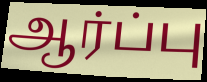
ஆர்ப்பு